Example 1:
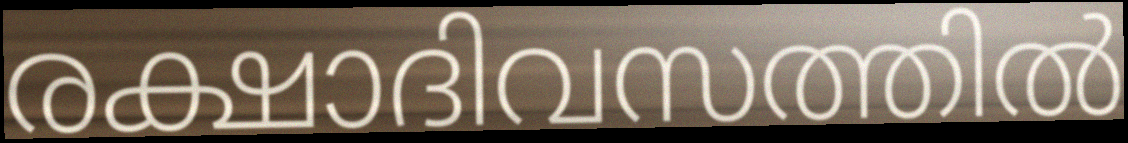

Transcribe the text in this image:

രക്ഷാദിവസത്തിൽ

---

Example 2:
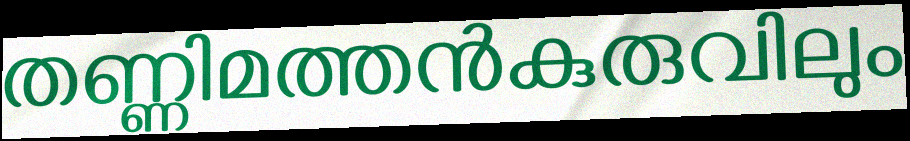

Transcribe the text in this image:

തണ്ണിമത്തൻകുരുവിലും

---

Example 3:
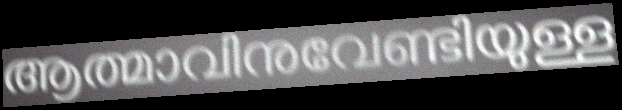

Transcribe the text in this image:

ആത്മാവിനുവേണ്ടിയുള്ള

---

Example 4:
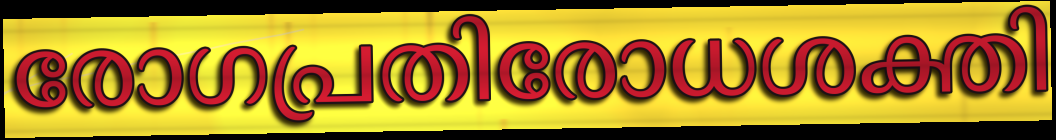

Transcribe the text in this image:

രോഗപ്രതിരോധശക്തി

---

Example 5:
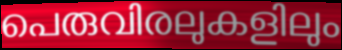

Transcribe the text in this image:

പെരുവിരലുകളിലും